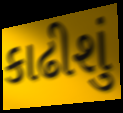
કાઢીશું